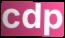
cdp